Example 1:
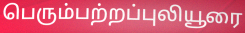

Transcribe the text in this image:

பெரும்பற்றப்புலியூரை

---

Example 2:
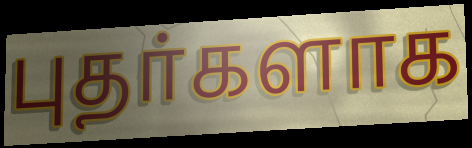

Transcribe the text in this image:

புதர்களாக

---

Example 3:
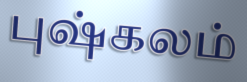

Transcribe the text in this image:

புஷ்கலம்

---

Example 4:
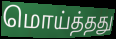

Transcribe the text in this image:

மொய்த்தது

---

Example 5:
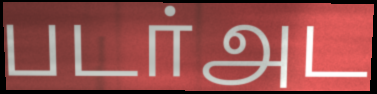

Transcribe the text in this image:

படர்அட